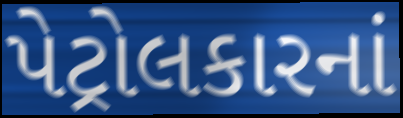
પેટ્રોલકારનાં